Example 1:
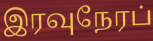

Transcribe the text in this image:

இரவுநேரப்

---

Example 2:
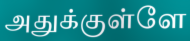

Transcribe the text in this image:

அதுக்குள்ளே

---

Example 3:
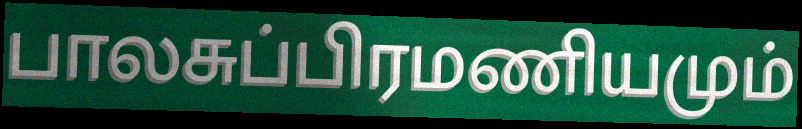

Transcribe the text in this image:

பாலசுப்பிரமணியமும்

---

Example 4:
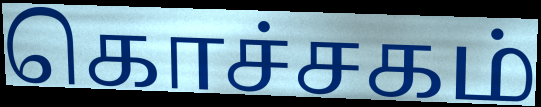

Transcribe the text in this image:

கொச்சகம்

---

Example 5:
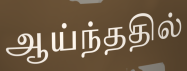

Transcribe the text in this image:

ஆய்ந்ததில்